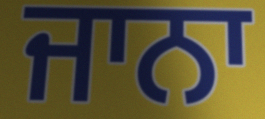
ਜਾਨਾ